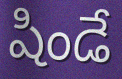
షిండే